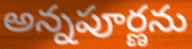
అన్నపూర్ణను